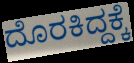
ದೊರಕಿದ್ದಕ್ಕೆ